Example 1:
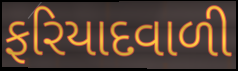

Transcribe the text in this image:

ફરિયાદવાળી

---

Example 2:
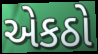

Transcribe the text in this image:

એકઠો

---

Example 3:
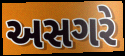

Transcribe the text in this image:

અસગરે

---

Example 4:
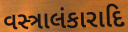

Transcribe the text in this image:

વસ્ત્રાલંકારાદિ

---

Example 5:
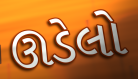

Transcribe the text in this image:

ઊડેલો